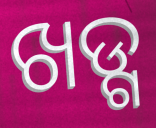
ଖଡ୍ଗ